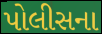
પોલીસના